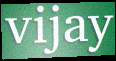
vijay